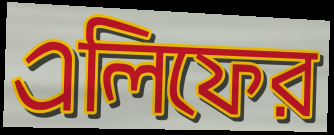
এলিফের